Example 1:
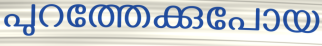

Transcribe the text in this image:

പുറത്തേക്കുപോയ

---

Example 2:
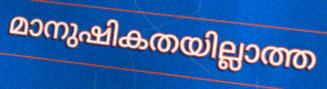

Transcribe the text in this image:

മാനുഷികതയില്ലാത്ത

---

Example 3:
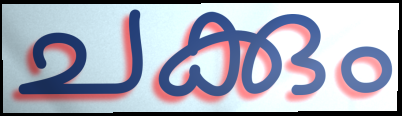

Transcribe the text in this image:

ചക്കും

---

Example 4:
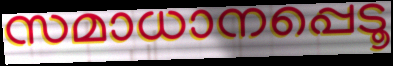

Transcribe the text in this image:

സമാധാനപ്പെടൂ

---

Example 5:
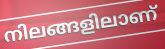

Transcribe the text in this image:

നിലങ്ങളിലാണ്